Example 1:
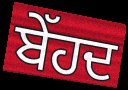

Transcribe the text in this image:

ਬੇੱਹਦ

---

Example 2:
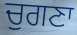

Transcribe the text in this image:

ਚੁਗਣਾ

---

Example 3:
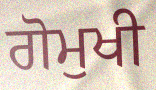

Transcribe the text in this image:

ਗੋਮੁਖੀ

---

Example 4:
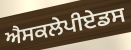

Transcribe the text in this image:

ਐਸਕਲੇਪੀਏਡਸ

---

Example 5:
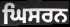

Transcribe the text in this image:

ਘਿਸਰਨ